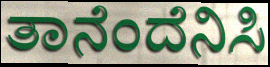
ತಾನೆಂದೆನಿಸಿ